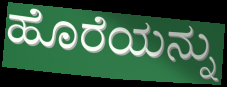
ಹೊರೆಯನ್ನು